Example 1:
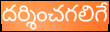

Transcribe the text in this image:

దర్శించగలిగే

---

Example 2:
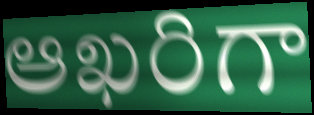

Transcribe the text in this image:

ఆఖరిగా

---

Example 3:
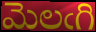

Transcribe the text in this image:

మెలఁగి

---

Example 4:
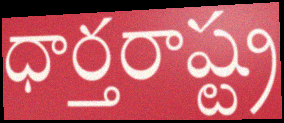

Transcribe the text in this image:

ధార్తరాష్ట్ర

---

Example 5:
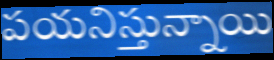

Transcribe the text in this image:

పయనిస్తున్నాయి